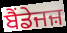
ਬੈਂਡੇਜਜ਼